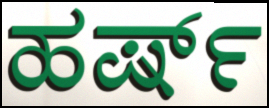
ಹರ್ಷ್